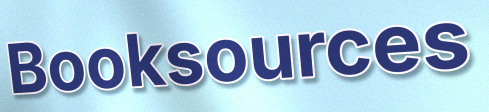
Booksources